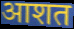
आशत